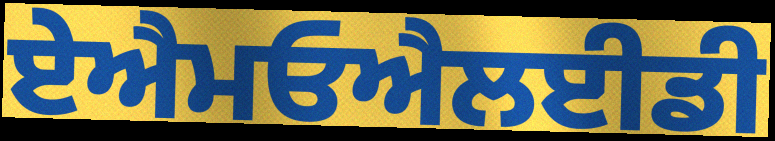
ਏਐਮਓਐਲਈਡੀ